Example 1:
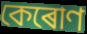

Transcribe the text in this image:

কেৰোণ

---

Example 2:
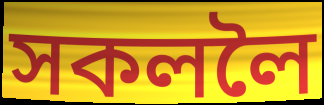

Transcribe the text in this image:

সকললৈ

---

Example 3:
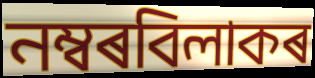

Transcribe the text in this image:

নম্বৰবিলাকৰ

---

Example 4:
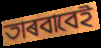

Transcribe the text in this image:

তাৰবাবেই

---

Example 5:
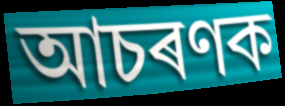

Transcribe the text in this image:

আচৰণক